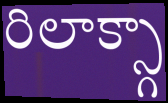
రిలాక్స్గా